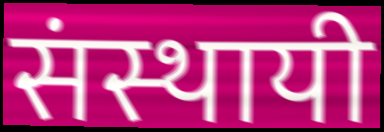
संस्थायी